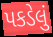
પકડેલું